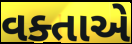
વક્તાએ